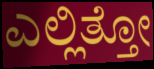
ಎಲ್ಲಿತ್ತೋ